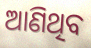
ଆଣିଥିବ